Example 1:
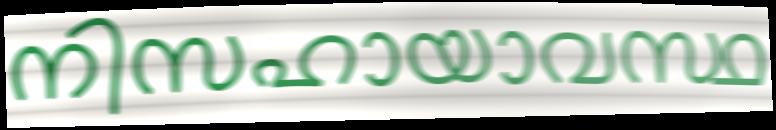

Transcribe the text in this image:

നിസഹായാവസ്ഥ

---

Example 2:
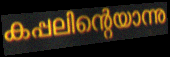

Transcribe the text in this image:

കപ്പലിന്റെയാന്നു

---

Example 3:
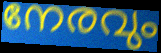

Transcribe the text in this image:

നേരവും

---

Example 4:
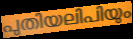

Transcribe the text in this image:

പുതിയലിപിയും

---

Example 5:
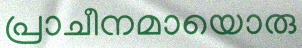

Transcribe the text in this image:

പ്രാചീനമായൊരു